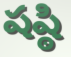
షష్ఠి